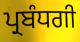
ਪ੍ਰਬੰਧਗੀ